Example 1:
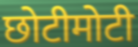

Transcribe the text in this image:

छोटीमोटी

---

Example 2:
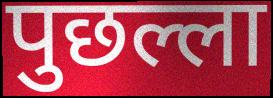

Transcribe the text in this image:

पुछल्ला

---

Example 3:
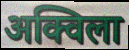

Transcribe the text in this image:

अक्विला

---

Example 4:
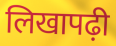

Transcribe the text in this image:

लिखापढ़ी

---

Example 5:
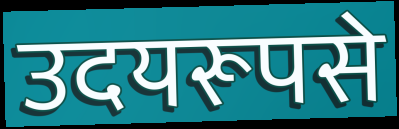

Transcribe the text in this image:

उदयरूपसे